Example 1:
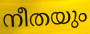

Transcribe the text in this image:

നീതയും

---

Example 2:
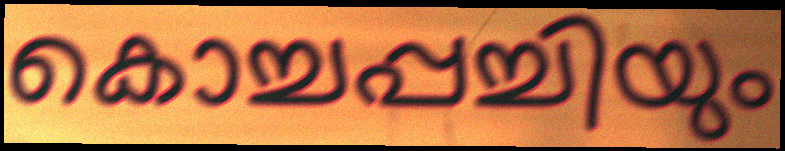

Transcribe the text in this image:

കൊച്ചപ്പച്ചിയും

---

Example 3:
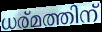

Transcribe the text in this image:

ധര്മത്തിന്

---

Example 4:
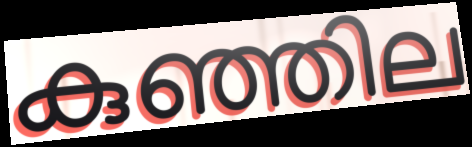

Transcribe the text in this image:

കുഞ്ഞില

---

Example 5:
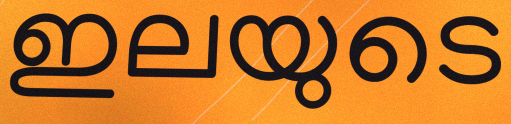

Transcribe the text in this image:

ഇലയുടെ